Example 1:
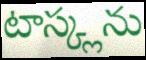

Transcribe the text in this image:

టాస్క్లను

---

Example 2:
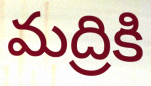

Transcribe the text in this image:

మద్రికి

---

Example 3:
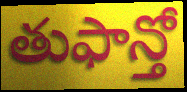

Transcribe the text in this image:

తుఫాన్తో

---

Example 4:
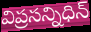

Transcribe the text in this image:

విప్రసన్నిధిన్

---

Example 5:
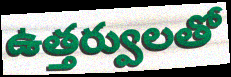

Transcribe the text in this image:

ఉత్తర్వులతో